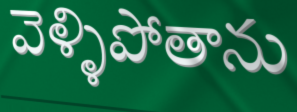
వెళ్ళిపోతాను